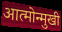
आत्मोन्मुखी